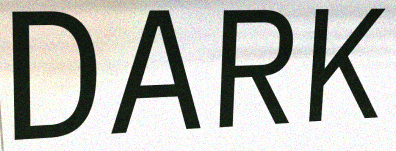
DARK